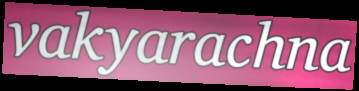
vakyarachna